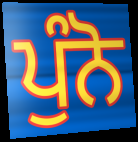
ਪੁੰਨੋ